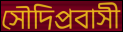
সৌদিপ্রবাসী